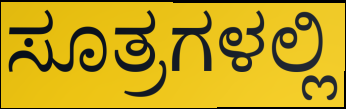
ಸೂತ್ರಗಳಲ್ಲಿ